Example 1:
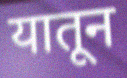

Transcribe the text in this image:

यातून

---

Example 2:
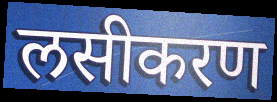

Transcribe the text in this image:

लसीकरण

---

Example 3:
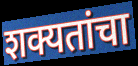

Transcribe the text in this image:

शक्यतांचा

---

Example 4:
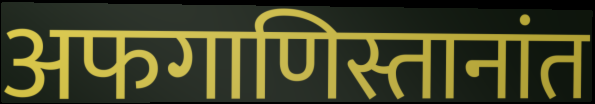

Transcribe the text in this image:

अफगाणिस्तानांत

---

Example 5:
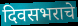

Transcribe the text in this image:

दिवसभराचे